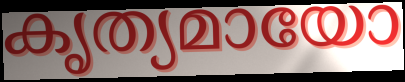
കൃത്യമായോ